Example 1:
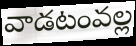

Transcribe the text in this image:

వాడటంవల్ల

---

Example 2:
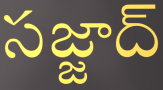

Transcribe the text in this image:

సజ్జాద్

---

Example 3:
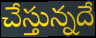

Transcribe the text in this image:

చేస్తున్నదే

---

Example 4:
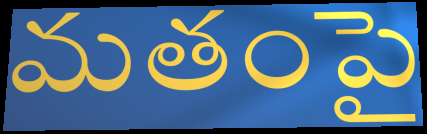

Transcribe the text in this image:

మతంపై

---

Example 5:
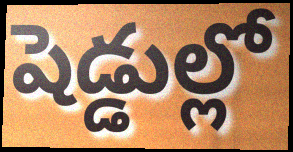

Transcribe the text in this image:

షెడ్డుల్లో